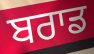
ਬਰਾਡ